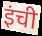
इंची